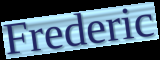
Frederic